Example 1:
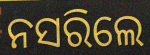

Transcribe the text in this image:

ନସରିଲେ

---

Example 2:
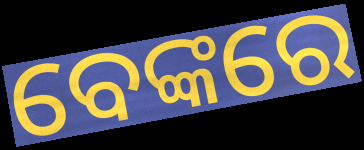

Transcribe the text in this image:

ବେଙ୍କରେ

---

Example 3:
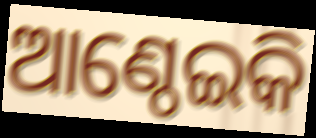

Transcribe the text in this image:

ଆଣ୍ଠେଇକି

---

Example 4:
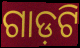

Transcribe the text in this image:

ଗାଡ଼ଟି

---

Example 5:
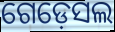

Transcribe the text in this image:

ଗେଡ଼େସଲ